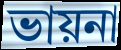
ভায়না